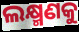
ଲକ୍ଷ୍ମଣକୁ